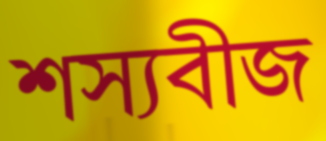
শস্যবীজ